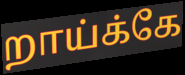
றாய்க்கே